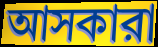
আসকারা